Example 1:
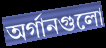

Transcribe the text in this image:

অর্গানগুলো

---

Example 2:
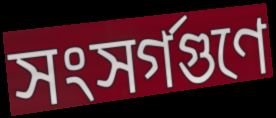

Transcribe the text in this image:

সংসর্গগুণে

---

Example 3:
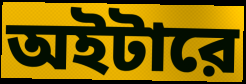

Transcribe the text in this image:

অইটারে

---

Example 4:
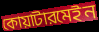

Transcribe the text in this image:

কোয়াটারমেইন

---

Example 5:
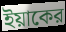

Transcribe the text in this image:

ইয়াকের